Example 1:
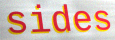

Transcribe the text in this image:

sides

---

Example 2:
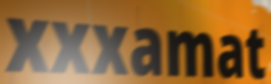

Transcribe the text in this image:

xxxamat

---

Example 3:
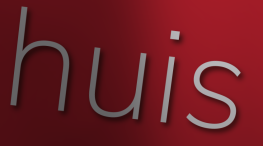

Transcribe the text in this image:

huis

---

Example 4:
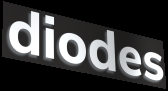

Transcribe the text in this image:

diodes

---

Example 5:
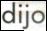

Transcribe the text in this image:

dijo